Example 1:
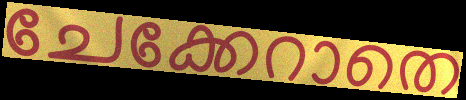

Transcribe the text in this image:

ചേക്കേറാതെ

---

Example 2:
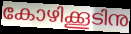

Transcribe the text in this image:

കോഴിക്കൂടിനു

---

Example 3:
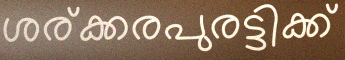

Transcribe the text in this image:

ശര്ക്കരപുരട്ടിക്ക്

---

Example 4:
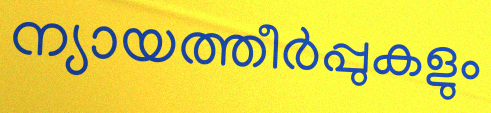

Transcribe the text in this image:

ന്യായത്തീർപ്പുകളും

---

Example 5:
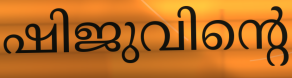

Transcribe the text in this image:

ഷിജുവിന്റെ